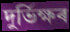
দুৰ্ভিক্ষৰ